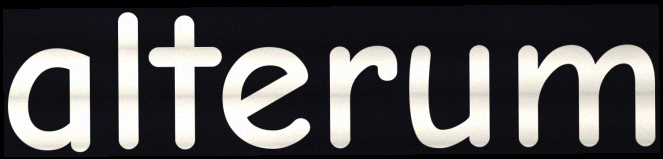
alterum